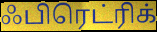
ஃபிரெட்ரிக்